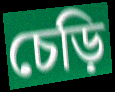
চেড়ি